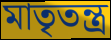
মাতৃতন্ত্র